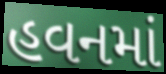
હવનમાં